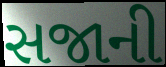
સજાની